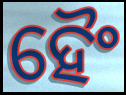
ହୈଂ